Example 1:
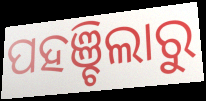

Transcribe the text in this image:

ପହଞ୍ଚିଲାରୁ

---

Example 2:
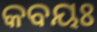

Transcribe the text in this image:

କବୟଃ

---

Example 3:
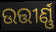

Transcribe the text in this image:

ଉତ୍ତୀର୍ଣ୍ଣ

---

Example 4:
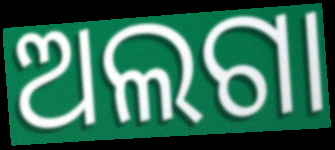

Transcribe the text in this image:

ଅଲଗା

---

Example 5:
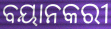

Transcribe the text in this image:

ବୟାନକରୀ